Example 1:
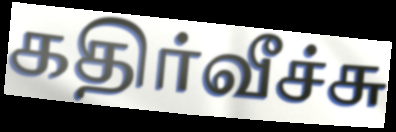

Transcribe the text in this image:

கதிர்வீச்சு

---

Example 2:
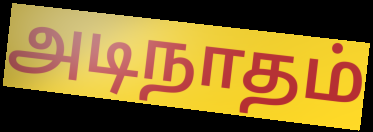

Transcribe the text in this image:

அடிநாதம்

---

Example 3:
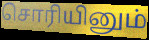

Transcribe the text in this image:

சொரியினும்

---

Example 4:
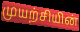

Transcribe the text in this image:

முயற்சியின்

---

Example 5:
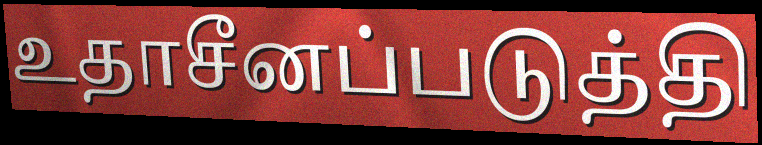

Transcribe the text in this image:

உதாசீனப்படுத்தி